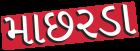
માછરડા